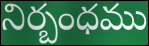
నిర్బంధము